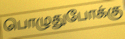
பொழுதுபோக்கு